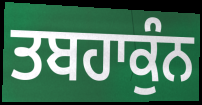
ਤਬਹਾਕੁੰਨ